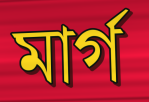
মার্গ